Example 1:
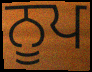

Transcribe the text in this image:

ਨੂਪ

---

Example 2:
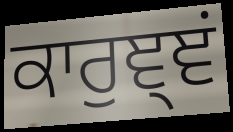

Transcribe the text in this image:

ਕਾਰੁਞ੍ਞਂ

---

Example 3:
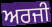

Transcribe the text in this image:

ਅਰਜੀ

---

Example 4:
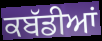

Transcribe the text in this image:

ਕਬੱਡੀਆਂ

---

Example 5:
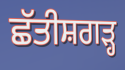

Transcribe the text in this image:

ਛੱਤੀਸ਼ਗੜ੍ਹ